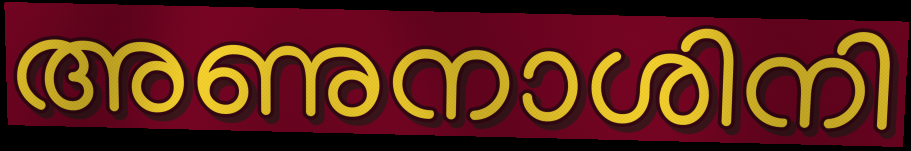
അണുനാശിനി